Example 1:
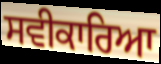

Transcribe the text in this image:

ਸਵੀਕਾਰਿਆ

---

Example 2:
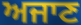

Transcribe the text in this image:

ਅਜਾਣ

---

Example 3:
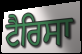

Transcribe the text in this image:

ਟੈਰਿਸਾ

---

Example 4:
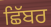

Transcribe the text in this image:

ਛਿੱਬਰ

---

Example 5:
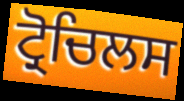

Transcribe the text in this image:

ਟ੍ਰੋਚਿਲਸ